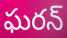
ఘరన్